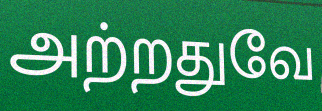
அற்றதுவே